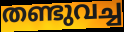
തണ്ടുവച്ച